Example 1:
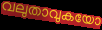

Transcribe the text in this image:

വലുതാവുകയോ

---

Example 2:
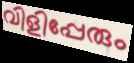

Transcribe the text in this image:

വിളിപ്പേരും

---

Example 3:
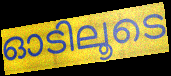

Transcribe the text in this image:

ഓടിലൂടെ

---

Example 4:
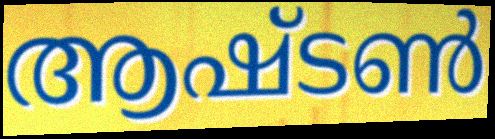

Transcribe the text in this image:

ആഷ്ടൺ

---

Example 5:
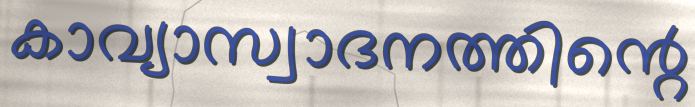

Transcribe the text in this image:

കാവ്യാസ്വാദനത്തിന്റെ